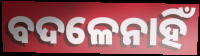
ବଦଳେନାହିଁ